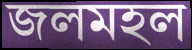
জলমহল